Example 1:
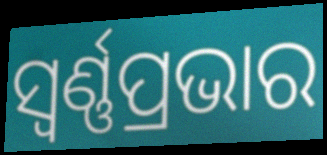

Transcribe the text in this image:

ସ୍ୱର୍ଣ୍ଣପ୍ରଭାର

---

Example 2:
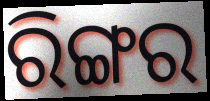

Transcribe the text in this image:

ରିଙ୍ଗର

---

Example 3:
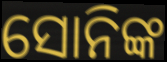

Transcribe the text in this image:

ସୋନିଙ୍କ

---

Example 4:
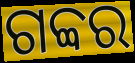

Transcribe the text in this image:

ଗବ୍ବର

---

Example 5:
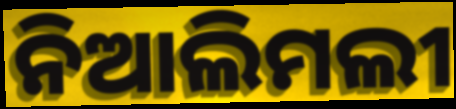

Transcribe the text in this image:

ନିଆଲିମଲୀ